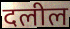
दलील